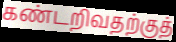
கண்டறிவதற்குத்